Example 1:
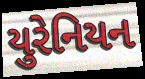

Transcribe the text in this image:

યુરેનિયન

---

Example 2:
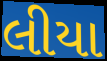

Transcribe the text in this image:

લીયા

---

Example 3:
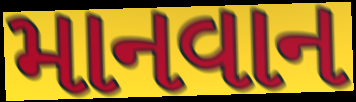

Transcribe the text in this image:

માનવાન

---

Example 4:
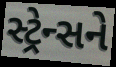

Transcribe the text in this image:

સ્ટ્રેન્સને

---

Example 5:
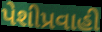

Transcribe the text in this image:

પેશીપ્રવાહી